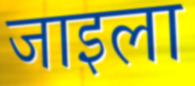
जाइला